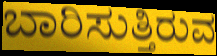
ಬಾರಿಸುತ್ತಿರುವ